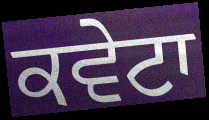
ਕਵੇਟਾ